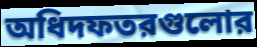
অধিদফতরগুলোর